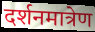
दर्शनमात्रेण